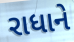
રાધાને